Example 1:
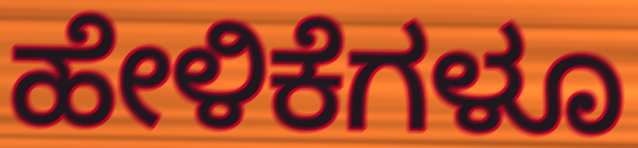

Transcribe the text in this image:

ಹೇಳಿಕೆಗಳೂ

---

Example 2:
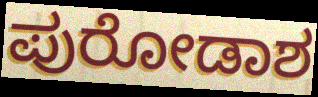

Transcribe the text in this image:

ಪುರೋಡಾಶ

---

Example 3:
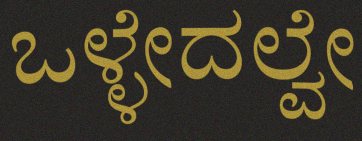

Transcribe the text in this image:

ಒಳ್ಳೇದಲ್ವೇ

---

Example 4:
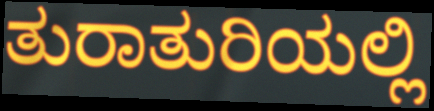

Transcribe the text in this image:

ತುರಾತುರಿಯಲ್ಲಿ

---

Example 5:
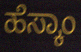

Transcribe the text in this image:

ಹೆಸ್ಕಾಂ